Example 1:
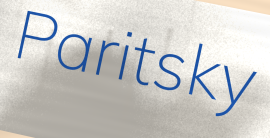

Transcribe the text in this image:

Paritsky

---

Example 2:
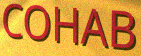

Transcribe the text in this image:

COHAB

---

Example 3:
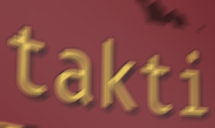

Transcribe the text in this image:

takti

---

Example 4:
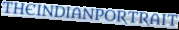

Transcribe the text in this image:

THEINDIANPORTRAIT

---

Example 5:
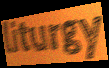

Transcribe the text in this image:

liturgy